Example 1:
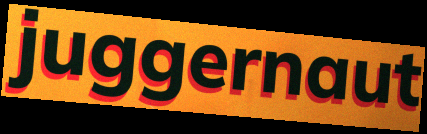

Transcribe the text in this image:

juggernaut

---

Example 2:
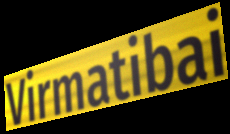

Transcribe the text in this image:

Virmatibai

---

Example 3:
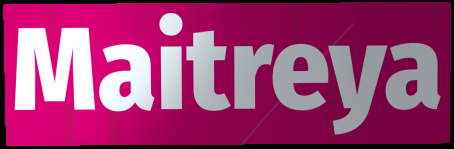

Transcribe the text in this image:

Maitreya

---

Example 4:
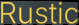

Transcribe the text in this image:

Rustic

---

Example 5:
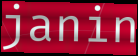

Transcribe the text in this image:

janin